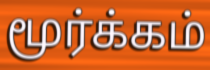
மூர்க்கம்